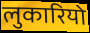
लुकारियो